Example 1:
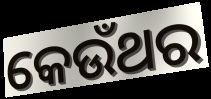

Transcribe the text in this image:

କେଉଁଥର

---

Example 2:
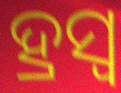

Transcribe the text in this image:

ହ୍ରସ୍ୱ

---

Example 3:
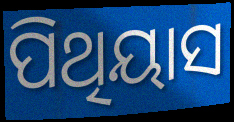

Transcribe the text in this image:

ପିଥିୟାସ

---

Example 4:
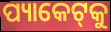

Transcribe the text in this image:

ପ୍ୟାକେଟ୍‌କୁ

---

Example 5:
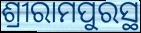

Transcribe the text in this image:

ଶ୍ରୀରାମପୁରସ୍ଥ